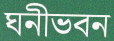
ঘনীভবন